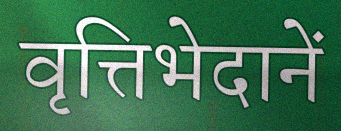
वृत्तिभेदानें